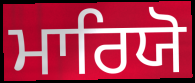
ਮਾਰਿਯੋ